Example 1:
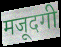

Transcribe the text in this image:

मजूदगी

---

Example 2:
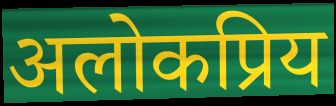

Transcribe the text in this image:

अलोकप्रिय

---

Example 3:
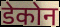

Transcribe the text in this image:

डेकोन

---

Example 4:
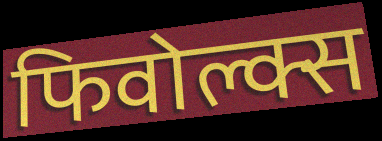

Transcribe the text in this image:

फिवोल्क्स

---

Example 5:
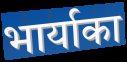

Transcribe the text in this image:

भार्याका